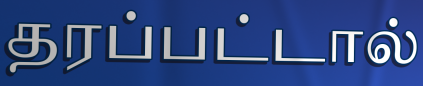
தரப்பட்டால்